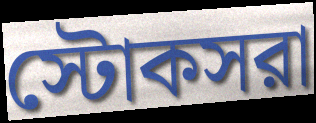
স্টোকসরা